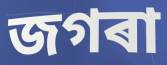
জগৰা